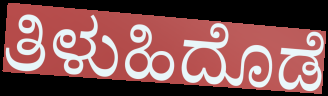
ತಿಳುಹಿದೊಡೆ